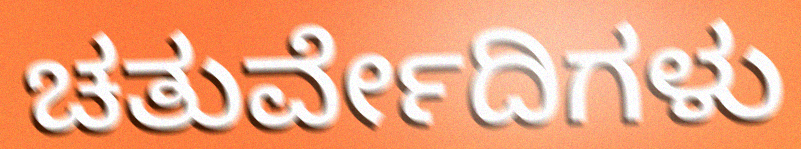
ಚತುರ್ವೇದಿಗಳು